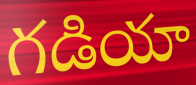
గడియా